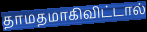
தாமதமாகிவிட்டால்